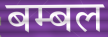
बम्बल